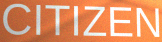
CITIZEN